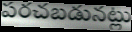
పరచబడునట్లు